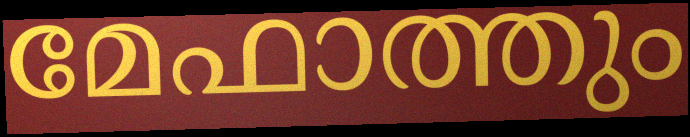
മേഫാത്തും